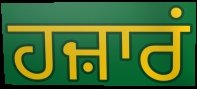
ਹਜ਼ਾਰਂ